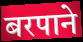
बरपाने